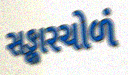
સઙ્કારચોળં